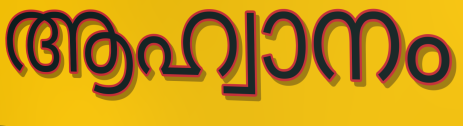
ആഹ്വാനം